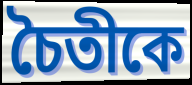
চৈতীকে